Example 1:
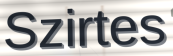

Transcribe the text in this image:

Szirtes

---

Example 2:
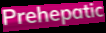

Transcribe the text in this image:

Prehepatic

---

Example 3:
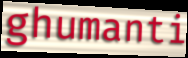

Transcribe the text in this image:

ghumanti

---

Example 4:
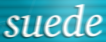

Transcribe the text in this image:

suede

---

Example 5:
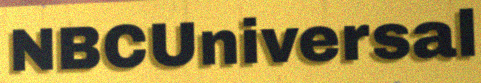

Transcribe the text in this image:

NBCUniversal